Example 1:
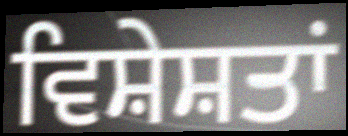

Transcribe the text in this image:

ਵਿਸ਼ੇਸ਼ਤਾਂ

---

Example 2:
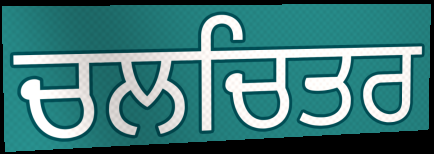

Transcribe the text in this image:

ਚਲਚਿਤਰ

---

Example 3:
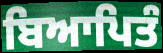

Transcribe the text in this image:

ਬਿਆਪਿਤੰ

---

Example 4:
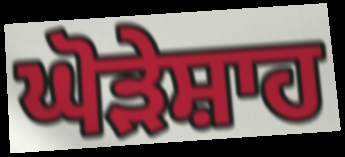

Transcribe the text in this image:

ਘੋੜੇਸ਼ਾਹ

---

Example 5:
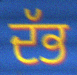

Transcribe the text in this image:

ਦੱਭ